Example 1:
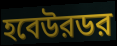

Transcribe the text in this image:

হবেউরডর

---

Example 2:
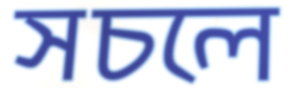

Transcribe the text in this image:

সচলে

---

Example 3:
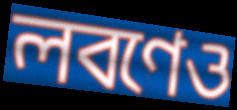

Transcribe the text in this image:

লবণেও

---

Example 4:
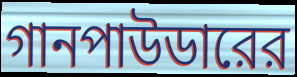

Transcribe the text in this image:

গানপাউডারের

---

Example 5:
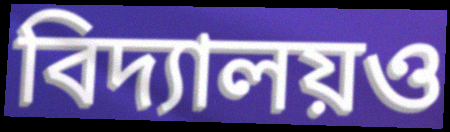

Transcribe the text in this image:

বিদ্যালয়ও